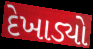
દેખાડ્યો